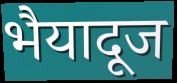
भैयादूज